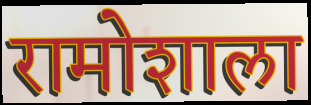
रामोशाला